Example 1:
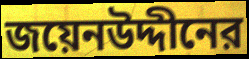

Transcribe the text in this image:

জয়েনউদ্দীনের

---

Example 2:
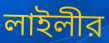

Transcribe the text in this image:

লাইলীর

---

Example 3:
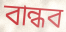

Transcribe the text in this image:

বান্ধব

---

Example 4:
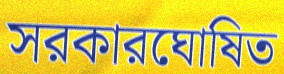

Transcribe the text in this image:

সরকারঘোষিত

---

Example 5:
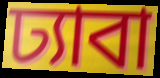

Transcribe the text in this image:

ঢ্যাবা